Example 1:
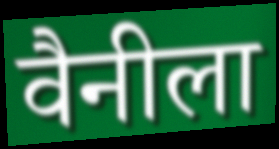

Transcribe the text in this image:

वैनीला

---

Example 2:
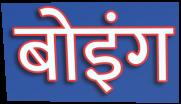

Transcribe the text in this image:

बोइंग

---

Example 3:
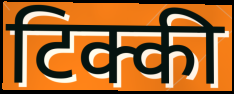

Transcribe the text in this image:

टिक्की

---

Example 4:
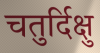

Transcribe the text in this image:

चतुर्दिक्षु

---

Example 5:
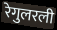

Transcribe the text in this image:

रेगुलरली